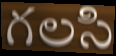
గలసి